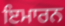
ਇਮਾਰਨ